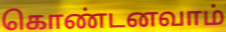
கொண்டனவாம்